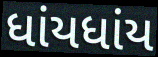
ધાંયધાંય